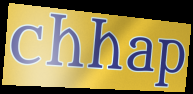
chhap